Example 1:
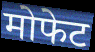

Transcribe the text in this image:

मोफेट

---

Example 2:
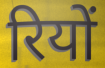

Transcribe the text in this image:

रियों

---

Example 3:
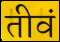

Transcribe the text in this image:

तीवं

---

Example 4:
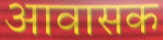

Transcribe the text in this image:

आवासक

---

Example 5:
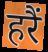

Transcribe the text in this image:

हरैं